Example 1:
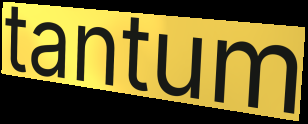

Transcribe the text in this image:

tantum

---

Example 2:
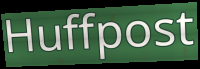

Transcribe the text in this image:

Huffpost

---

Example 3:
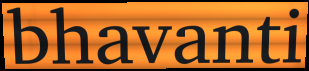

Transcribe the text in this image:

bhavanti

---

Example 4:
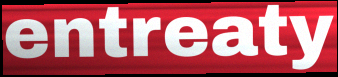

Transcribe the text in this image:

entreaty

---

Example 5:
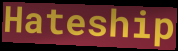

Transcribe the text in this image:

Hateship